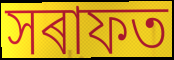
সৰাফত